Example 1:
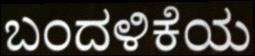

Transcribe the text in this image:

ಬಂದಳಿಕೆಯ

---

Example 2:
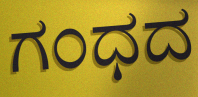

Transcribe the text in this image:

ಗಂಧದ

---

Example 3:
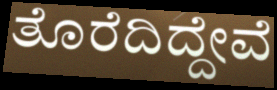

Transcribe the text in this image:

ತೊರೆದಿದ್ದೇವೆ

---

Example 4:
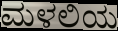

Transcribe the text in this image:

ಮಳಲಿಯ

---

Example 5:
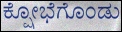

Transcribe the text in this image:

ಕ್ಷೋಭೆಗೊಂಡು